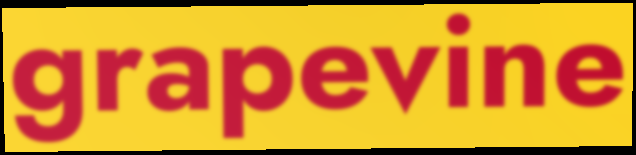
grapevine